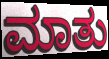
ಮಾತು